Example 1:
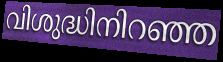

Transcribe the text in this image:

വിശുദ്ധിനിറഞ്ഞ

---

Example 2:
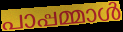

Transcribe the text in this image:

പാപ്പമ്മാൾ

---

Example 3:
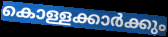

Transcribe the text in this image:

കൊള്ളക്കാർക്കും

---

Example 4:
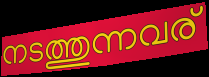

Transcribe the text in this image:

നടത്തുന്നവര്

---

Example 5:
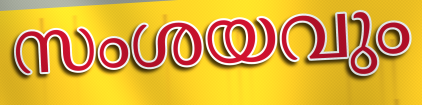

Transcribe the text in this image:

സംശയവും